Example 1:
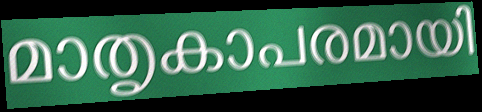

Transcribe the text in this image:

മാതൃകാപരമായി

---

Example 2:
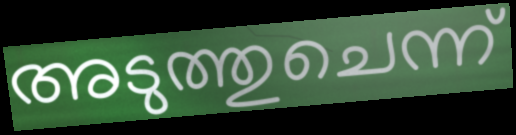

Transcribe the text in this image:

അടുത്തുചെന്ന്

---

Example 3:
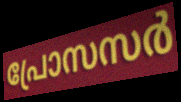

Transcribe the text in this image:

പ്രോസസർ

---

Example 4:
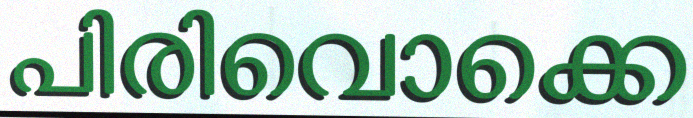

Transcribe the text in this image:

പിരിവൊക്കെ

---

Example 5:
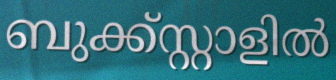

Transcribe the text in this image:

ബുക്ക്സ്റ്റാളിൽ